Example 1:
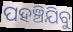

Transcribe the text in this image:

ପହଞ୍ଚିଯିବୁ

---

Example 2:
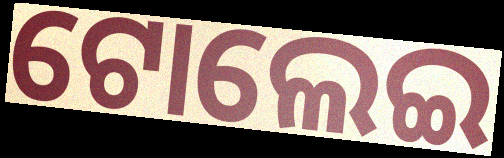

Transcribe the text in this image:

ଟୋଲେଇ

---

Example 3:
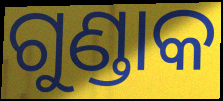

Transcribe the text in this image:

ଗୁଣ୍ଡାକ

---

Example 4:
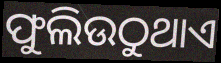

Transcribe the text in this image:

ଫୁଲିଉଠୁଥାଏ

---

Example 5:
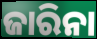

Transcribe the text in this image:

ଜାରିନା